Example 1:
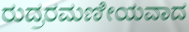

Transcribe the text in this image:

ರುದ್ರರಮಣೀಯವಾದ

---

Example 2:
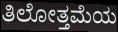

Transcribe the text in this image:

ತಿಲೋತ್ತಮೆಯ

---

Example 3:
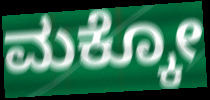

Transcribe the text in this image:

ಮಕ್ಕೋ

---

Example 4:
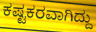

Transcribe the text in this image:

ಕಷ್ಟಕರವಾಗಿದ್ದು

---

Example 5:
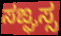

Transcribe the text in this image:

ಸಙ್ಘಸ್ಸ